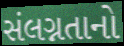
સંલગ્નતાનો